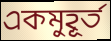
একমুহূর্ত